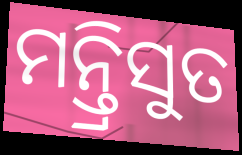
ମନ୍ତ୍ରିସୁତ